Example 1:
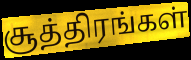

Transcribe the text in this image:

சூத்திரங்கள்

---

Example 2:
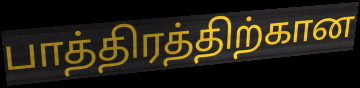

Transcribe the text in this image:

பாத்திரத்திற்கான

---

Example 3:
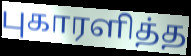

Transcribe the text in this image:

புகாரளித்த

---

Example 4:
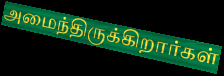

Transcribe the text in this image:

அமைந்திருக்கிறார்கள்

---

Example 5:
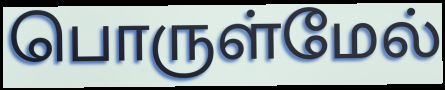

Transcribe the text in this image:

பொருள்மேல்